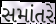
સમાંતરે